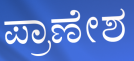
ಪ್ರಾಣೇಶ